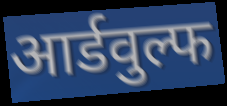
आर्डवुल्फ